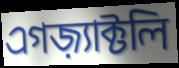
এগজ়্যাক্টলি